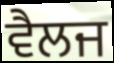
ਵੈਲਜ